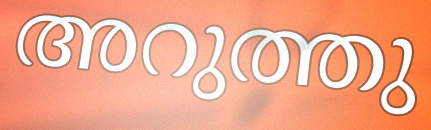
അറുത്തു